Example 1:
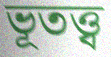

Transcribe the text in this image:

ভূতত্ত্ব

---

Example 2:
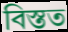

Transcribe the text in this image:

বিস্তত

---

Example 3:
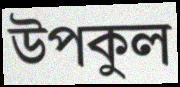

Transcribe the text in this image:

উপকুল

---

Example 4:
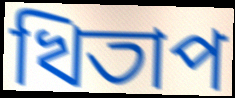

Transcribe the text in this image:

খিতাপ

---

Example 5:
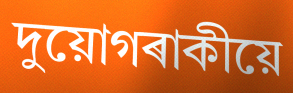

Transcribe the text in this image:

দুয়োগৰাকীয়ে